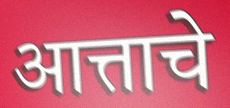
आत्ताचे